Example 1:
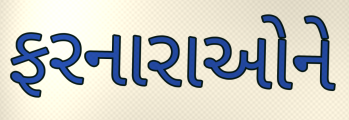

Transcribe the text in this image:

ફરનારાઓને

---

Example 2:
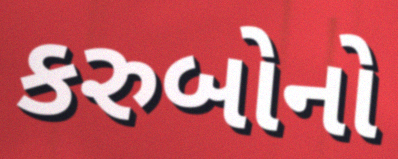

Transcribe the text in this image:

કરુબોનો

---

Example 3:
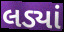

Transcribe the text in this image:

લડ્યાં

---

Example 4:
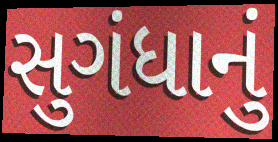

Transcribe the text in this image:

સુગંધાનું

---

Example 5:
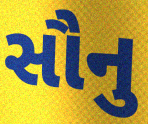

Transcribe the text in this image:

સૌનુ